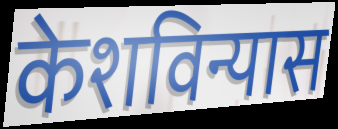
केशविन्यास